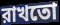
রাখতো